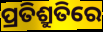
ପ୍ରତିଶ୍ରୁତିରେ